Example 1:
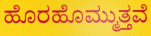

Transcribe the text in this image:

ಹೊರಹೊಮ್ಮುತ್ತವೆ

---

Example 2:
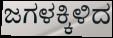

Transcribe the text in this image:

ಜಗಳಕ್ಕಿಳಿದ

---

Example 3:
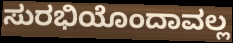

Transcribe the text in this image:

ಸುರಭಿಯೊಂದಾವಲ್ಲ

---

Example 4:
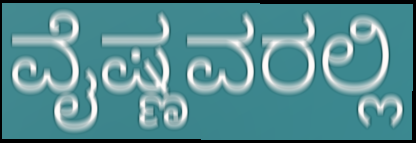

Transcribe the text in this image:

ವೈಷ್ಣವರಲ್ಲಿ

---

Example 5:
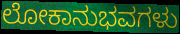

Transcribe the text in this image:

ಲೋಕಾನುಭವಗಳು